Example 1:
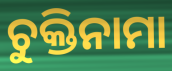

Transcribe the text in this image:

ଚୁକ୍ତିନାମା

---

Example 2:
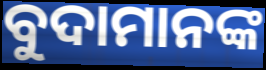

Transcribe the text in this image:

ବୁଦାମାନଙ୍କ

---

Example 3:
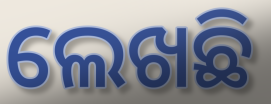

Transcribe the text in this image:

ଲେଖଛି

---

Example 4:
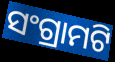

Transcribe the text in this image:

ସଂଗ୍ରାମଟି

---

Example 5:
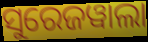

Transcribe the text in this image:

ସୁରେଜୱାଲା